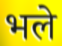
भले